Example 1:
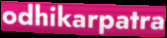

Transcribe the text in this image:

odhikarpatra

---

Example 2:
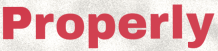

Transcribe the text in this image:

Properly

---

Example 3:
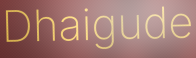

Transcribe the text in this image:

Dhaigude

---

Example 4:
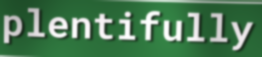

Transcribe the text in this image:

plentifully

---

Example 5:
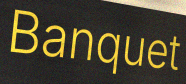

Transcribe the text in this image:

Banquet